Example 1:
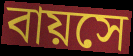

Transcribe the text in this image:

বায়সে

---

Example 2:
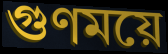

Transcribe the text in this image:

গুণময়ে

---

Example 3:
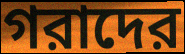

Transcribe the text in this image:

গরাদের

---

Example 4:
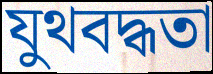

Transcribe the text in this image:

যুথবদ্ধতা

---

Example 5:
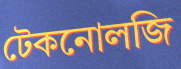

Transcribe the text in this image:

টেকনোলজি